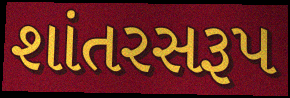
શાંતરસરૂપ